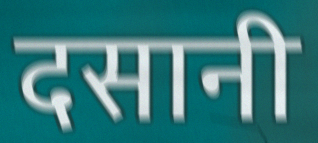
दसानी